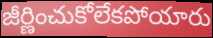
జీర్ణించుకోలేకపోయారు